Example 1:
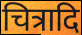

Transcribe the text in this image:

चित्रादि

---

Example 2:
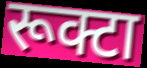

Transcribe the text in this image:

रूक्टा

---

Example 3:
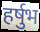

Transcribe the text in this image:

हर्षुभ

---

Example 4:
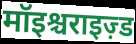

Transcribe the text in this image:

मॉइश्चराइज़्ड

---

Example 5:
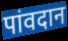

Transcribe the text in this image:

पांवदान